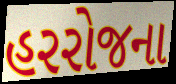
હરરોજના